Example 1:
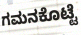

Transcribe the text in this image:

ಗಮನಕೊಟ್ಟೆ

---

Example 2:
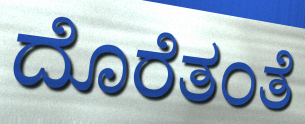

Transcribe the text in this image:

ದೊರೆತಂತೆ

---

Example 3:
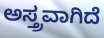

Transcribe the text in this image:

ಅಸ್ತ್ರವಾಗಿದೆ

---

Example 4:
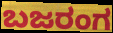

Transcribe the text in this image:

ಬಜರಂಗ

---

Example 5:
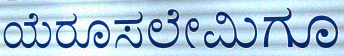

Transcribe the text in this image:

ಯೆರೂಸಲೇಮಿಗೂ